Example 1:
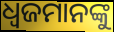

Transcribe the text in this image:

ଧ୍ୱଜମାନଙ୍କୁ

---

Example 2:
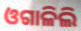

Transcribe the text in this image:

ଓଗାଳିଲି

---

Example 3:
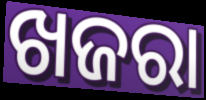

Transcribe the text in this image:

ଖଜରା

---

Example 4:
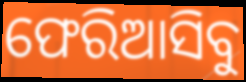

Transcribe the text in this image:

ଫେରିଆସିବୁ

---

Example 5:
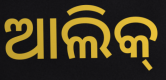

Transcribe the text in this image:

ଆଲିକ୍